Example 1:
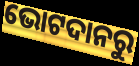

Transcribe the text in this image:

ଭୋଟଦାନରୁ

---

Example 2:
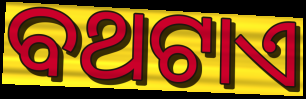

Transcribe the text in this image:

ବଥଟାଏ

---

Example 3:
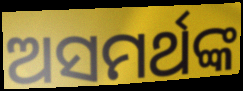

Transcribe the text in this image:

ଅସମର୍ଥଙ୍କ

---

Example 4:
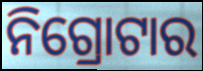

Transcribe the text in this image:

ନିଗ୍ରୋଟାର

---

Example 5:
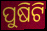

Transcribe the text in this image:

ପୁଷିଟି